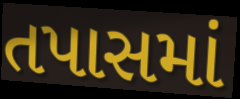
તપાસમાં